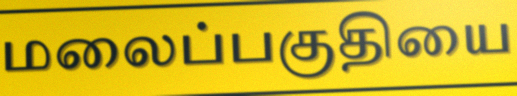
மலைப்பகுதியை